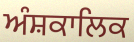
ਅੰਸ਼ਕਾਲਿਕ